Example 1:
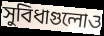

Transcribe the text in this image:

সুবিধাগুলোও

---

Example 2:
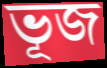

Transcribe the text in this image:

ভূজ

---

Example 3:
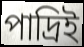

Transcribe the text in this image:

পাদ্রিই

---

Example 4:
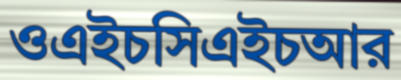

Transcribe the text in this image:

ওএইচসিএইচআর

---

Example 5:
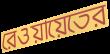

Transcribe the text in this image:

রেওয়ায়েতের